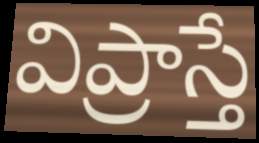
విప్రాస్తే